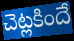
చెట్లకిందే